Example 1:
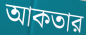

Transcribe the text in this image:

আকতার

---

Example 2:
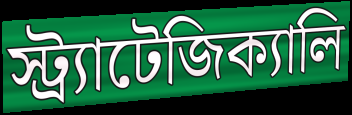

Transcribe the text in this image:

স্ট্র্যাটেজিক্যালি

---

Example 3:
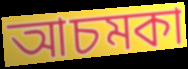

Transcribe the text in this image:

আচমকা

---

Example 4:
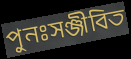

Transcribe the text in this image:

পুনঃসঞ্জীবিত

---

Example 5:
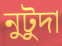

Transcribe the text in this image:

নুটুদা